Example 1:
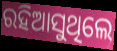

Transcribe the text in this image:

ରହିଆସୁଥିଲେ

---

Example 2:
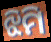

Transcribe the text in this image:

ଝିମି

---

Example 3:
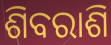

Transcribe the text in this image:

ଶିବରାଶି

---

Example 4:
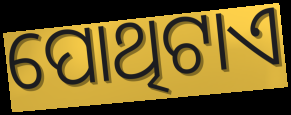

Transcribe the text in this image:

ପୋଥିଟାଏ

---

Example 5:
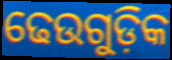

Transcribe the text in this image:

ଢେଉଗୁଡ଼ିକ